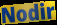
Nodir